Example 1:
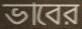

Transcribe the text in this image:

ভাবের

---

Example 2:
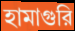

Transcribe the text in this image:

হামাগুরি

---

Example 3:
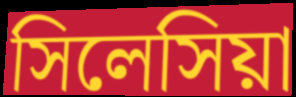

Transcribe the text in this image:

সিলেসিয়া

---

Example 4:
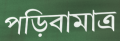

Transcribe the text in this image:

পড়িবামাত্র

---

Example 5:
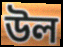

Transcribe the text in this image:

উল